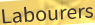
Labourers